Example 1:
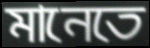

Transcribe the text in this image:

মানেতে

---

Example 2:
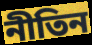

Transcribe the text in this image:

নীতিন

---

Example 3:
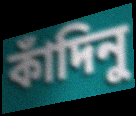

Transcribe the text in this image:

কাঁদিনু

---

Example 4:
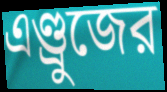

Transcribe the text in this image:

এণ্ড্রুজের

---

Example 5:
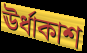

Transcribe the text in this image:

ঊর্ধাকাশ